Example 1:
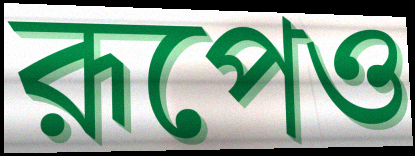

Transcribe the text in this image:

রূপেও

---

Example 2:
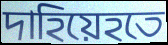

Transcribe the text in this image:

দাহিয়েহতে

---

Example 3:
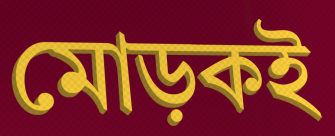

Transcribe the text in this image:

মোড়কই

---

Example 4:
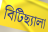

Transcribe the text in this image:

বিটিছ্যালা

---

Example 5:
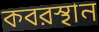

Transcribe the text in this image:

কবরস্থান